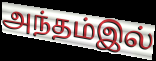
அந்தம்இல்